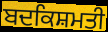
ਬਦਕਿਸ਼ਮਤੀ